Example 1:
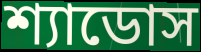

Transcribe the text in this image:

শ্যাডোস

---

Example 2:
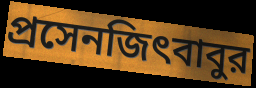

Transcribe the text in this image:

প্রসেনজিৎবাবুর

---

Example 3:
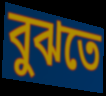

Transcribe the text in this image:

বুঝতে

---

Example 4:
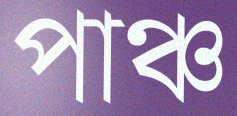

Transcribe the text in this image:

পাঞ্চ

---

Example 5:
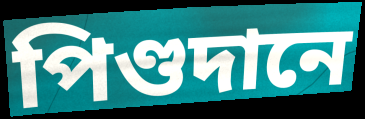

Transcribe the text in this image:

পিণ্ডদানে